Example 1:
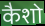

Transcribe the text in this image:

कैशो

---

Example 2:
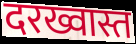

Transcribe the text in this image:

दरख्वास्त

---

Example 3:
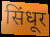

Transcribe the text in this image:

सिंधूर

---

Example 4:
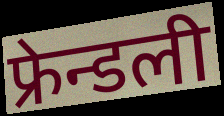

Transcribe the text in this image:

फ्रेन्डली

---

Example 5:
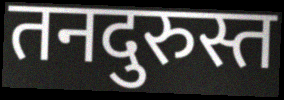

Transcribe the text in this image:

तनदुरुस्त